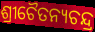
ଶ୍ରୀଚୈତନ୍ୟଚନ୍ଦ୍ର